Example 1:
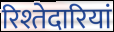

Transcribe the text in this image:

रिश्तेदारियां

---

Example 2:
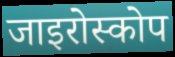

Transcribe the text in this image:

जाइरोस्कोप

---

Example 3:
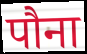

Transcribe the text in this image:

पौना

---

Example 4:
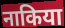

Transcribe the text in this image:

नाकिया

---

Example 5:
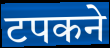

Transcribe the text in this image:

टपकने